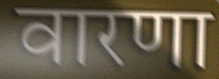
वारणा